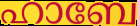
ഹാബേ